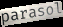
parasol